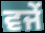
ਵਜੇਂ